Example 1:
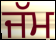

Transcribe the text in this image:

ਜੱਮ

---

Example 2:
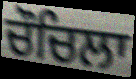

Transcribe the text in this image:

ਚੌਚਿਲਾ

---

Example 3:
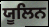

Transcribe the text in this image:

ਯੂਲਿਨ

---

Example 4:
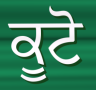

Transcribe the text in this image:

ਕੂਟੋ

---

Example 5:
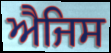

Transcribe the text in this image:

ਐਜਿਸ